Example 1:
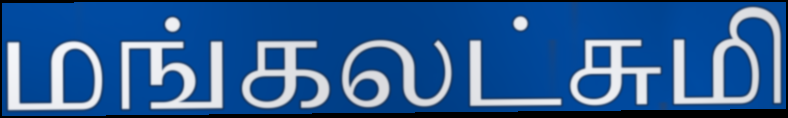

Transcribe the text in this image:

மங்கலட்சுமி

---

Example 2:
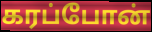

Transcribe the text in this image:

கரப்போன்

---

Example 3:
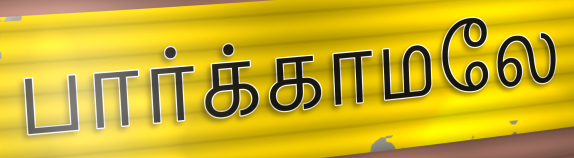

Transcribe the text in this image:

பார்க்காமலே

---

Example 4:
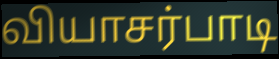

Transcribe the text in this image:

வியாசர்பாடி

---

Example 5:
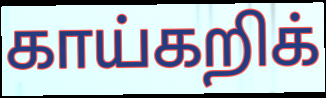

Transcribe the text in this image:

காய்கறிக்